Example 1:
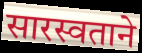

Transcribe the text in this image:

सारस्वताने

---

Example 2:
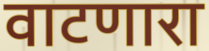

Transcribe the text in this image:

वाटणारा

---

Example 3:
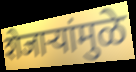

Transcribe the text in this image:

शेजाऱ्यांमुळे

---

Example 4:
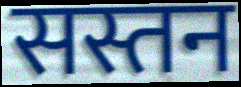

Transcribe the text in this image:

सस्तन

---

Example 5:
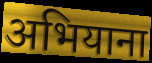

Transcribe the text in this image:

अभियाना